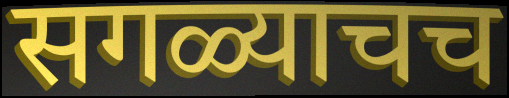
सगळ्याचच